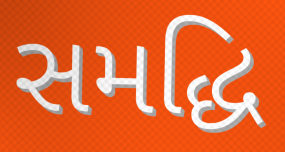
સમદ્ધિ